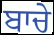
ਬਾਚੇ